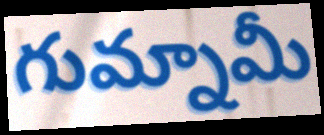
గుమ్నామీ